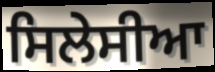
ਸਿਲੇਸੀਆ